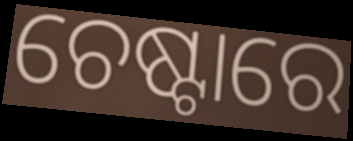
ଚେଷ୍ଟାରେ